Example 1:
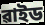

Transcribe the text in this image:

ৱাইড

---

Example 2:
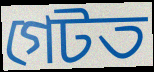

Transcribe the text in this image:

গেটত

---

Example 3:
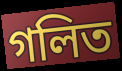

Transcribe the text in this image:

গলিত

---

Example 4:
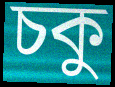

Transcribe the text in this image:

চকু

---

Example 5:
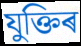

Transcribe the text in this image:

যুক্তিৰ